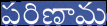
పరిణామ